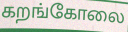
கறங்கோலை